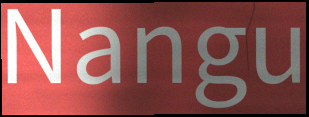
Nangu